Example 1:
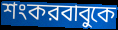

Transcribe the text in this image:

শংকরবাবুকে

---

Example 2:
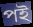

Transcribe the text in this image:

পই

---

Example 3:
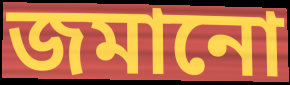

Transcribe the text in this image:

জমানো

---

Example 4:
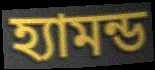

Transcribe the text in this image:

হ্যামন্ড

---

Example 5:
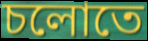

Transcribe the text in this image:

চলোতে